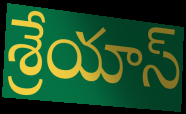
శ్రేయాస్